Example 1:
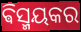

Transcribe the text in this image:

ଵିସ୍ମୟକର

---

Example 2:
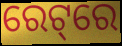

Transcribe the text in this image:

ରେଟ୍‌ରେ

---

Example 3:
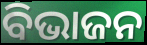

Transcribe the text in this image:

ବିଭାଜନ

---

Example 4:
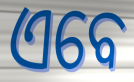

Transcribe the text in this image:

ଏବେ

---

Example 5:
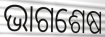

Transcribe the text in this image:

ଭାଗଶେଷ